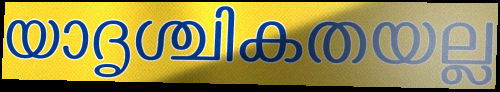
യാദൃശ്ചികതയല്ല